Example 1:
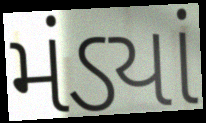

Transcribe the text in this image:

મંડ્યાં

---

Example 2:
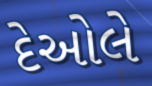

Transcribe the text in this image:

દેઓલે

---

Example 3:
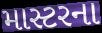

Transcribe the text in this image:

માસ્ટરના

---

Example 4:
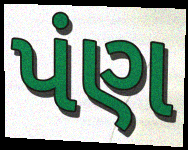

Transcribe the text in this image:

પંણ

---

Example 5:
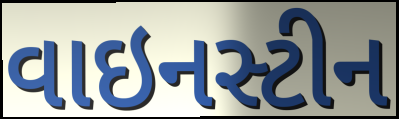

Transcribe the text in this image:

વાઇનસ્ટીન